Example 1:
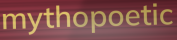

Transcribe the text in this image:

mythopoetic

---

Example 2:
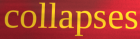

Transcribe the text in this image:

collapses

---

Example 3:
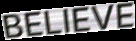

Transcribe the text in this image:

BELIEVE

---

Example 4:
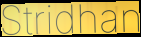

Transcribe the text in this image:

Stridhan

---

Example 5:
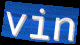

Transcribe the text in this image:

vin